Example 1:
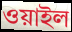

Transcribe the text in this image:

ওয়াইল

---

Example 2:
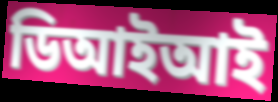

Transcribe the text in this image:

ডিআইআই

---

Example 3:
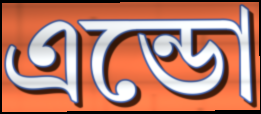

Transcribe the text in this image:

এন্ডো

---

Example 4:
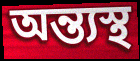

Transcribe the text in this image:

অন্ত্যস্থ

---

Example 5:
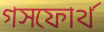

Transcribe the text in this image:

গসফোর্থ